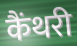
कैंथरी